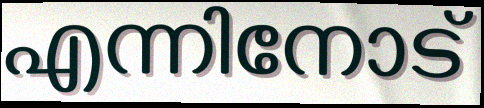
എന്നിനോട്